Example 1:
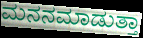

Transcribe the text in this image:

ಮನನಮಾಡುತ್ತಾ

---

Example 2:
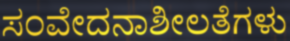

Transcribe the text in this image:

ಸಂವೇದನಾಶೀಲತೆಗಳು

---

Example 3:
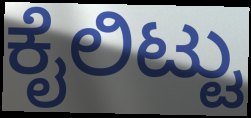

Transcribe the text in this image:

ಕೈಲಿಟ್ಟು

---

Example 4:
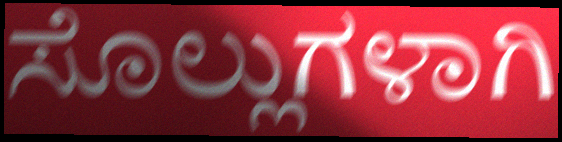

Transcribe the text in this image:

ಸೊಲ್ಲುಗಳಾಗಿ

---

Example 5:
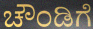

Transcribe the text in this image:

ಚೌಂಡಿಗೆ